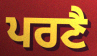
ਪਰਣੈ